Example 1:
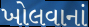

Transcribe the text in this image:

ખોલવાનાં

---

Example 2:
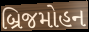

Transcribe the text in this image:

બ્રિજમોહન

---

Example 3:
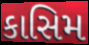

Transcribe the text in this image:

કાસિમ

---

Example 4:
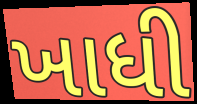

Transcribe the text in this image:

ખાધી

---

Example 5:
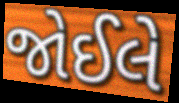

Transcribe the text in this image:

જોઈલે